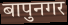
बापुनगर